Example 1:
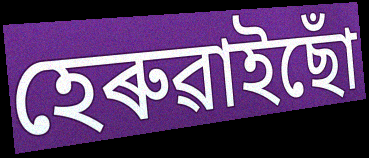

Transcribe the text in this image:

হেৰুৱাইছোঁ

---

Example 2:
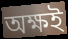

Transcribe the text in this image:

অক্ষই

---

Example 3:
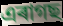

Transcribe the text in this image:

এৰাগছ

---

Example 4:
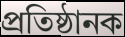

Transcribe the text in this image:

প্ৰতিষ্ঠানক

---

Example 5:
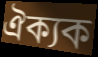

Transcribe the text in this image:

ঐক্যক